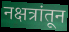
नक्षत्रांतून